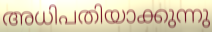
അധിപതിയാക്കുന്നു